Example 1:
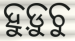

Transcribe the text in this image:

ହୁଡ଼ୁଚୁ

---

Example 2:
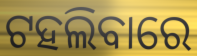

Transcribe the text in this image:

ଟହଲିବାରେ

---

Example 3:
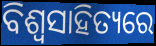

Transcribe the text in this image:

ବିଶ୍ବସାହିତ୍ୟରେ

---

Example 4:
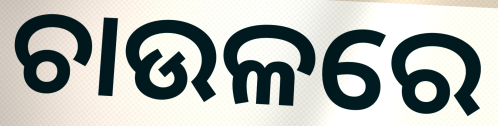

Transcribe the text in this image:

ଚାଉଳରେ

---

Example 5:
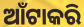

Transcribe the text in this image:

ଆଁଟାକରି